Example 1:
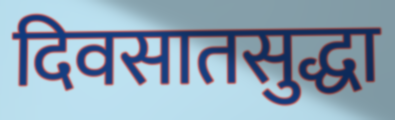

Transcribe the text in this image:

दिवसातसुद्धा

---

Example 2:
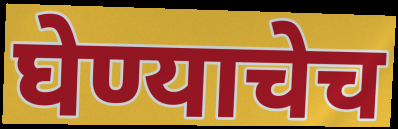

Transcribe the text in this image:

घेण्याचेच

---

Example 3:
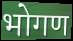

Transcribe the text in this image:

भोगण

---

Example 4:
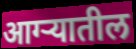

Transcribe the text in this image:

आग्ऱ्यातील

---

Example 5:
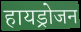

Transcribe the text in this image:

हायड्रोजन